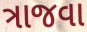
ત્રાજવા